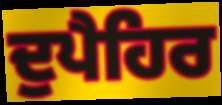
ਦੁਪੈਹਿਰ